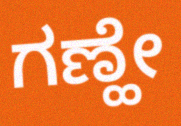
ಗಣ್ಹೇ